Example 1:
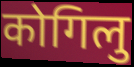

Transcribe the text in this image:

कोगिलु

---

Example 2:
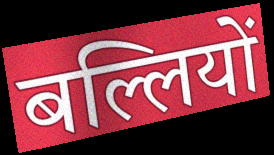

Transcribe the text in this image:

बल्लियों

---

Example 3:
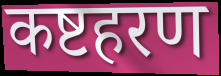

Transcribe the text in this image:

कष्टहरण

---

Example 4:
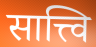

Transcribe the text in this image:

सात्त्वि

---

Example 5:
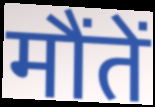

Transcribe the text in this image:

मौंतें